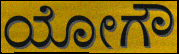
ಯೋಗೌ